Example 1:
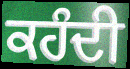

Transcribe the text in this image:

ਕਹੰਦੀ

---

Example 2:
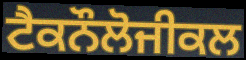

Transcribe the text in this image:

ਟੈਕਨੌਲੋਜੀਕਲ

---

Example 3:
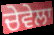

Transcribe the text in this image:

ਚੇਵੇਲਾ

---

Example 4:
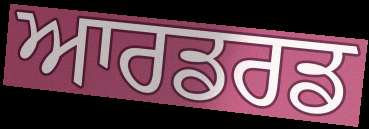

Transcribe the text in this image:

ਆਰਡਰਡ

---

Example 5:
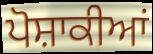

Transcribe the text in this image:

ਪੋਸ਼ਾਕੀਆਂ